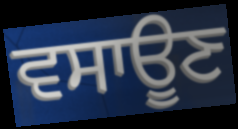
ਵਸਾਊਣ